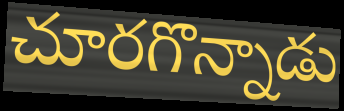
చూరగొన్నాడు